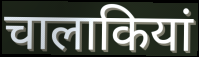
चालाकियां